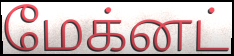
மேக்னட்